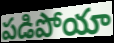
పడిపోయా